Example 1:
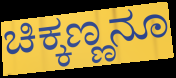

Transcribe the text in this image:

ಚಿಕ್ಕಣ್ಣನೂ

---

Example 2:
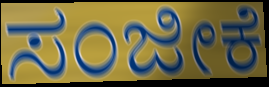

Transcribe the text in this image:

ಸಂಜೀಕೆ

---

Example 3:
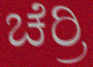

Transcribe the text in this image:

ಚೆರ‍್ರಿ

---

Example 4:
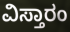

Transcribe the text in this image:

ವಿಸ್ತಾರಂ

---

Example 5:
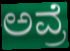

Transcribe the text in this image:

ಅವ್ರೆ